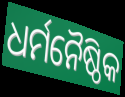
ଧର୍ମନୈଷ୍ଠିକ